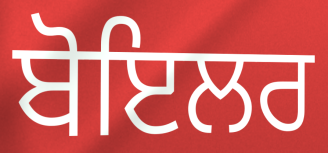
ਬੋਇਲਰ